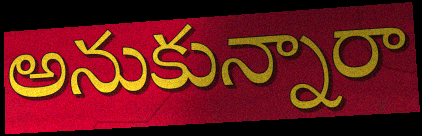
అనుకున్నారా